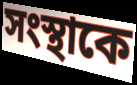
সংস্থাকে